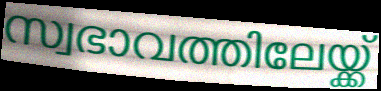
സ്വഭാവത്തിലേയ്ക്ക്